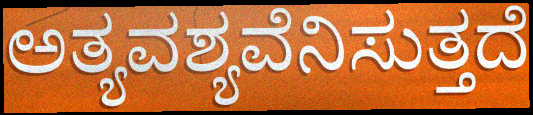
ಅತ್ಯವಶ್ಯವೆನಿಸುತ್ತದೆ